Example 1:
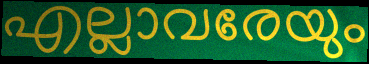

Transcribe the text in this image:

എല്ലാവരേയും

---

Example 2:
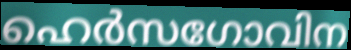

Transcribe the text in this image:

ഹെർസഗോവിന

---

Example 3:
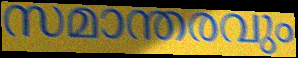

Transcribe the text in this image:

സമാന്തരവും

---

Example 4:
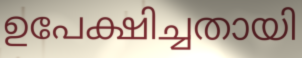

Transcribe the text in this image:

ഉപേക്ഷിച്ചതായി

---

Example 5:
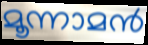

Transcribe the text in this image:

മൂന്നാമൻ